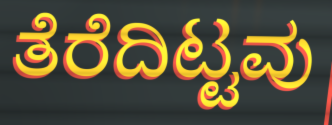
ತೆರೆದಿಟ್ಟವು